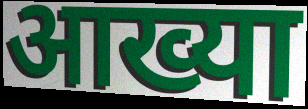
आख्या